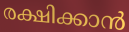
രക്ഷിക്കാൻ